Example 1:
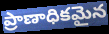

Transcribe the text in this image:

ప్రాణాధికమైన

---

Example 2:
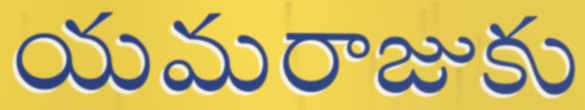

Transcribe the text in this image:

యమరాజుకు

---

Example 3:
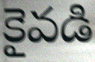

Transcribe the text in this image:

కైవడి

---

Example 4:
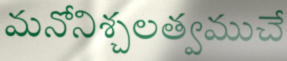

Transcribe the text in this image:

మనోనిశ్చలత్వముచే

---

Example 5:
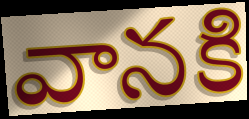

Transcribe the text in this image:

వానకి